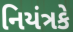
નિયંત્રકે